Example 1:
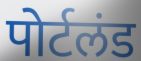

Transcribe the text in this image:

पोर्टलंड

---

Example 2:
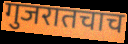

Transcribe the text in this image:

गुजरातचाच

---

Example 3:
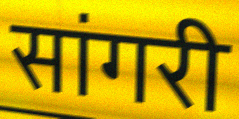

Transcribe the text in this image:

सांगरी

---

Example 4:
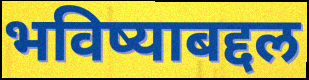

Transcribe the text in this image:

भविष्याबद्दल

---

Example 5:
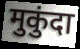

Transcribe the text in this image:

मुकुंदा